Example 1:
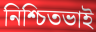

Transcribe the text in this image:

নিশ্চিতভাই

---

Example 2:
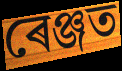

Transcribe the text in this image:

ৰেঞ্জত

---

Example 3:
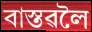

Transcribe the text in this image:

বাস্তৱলৈ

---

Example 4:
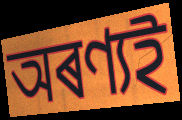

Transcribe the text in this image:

অৰণ্যই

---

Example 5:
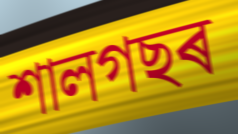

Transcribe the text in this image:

শালগছৰ